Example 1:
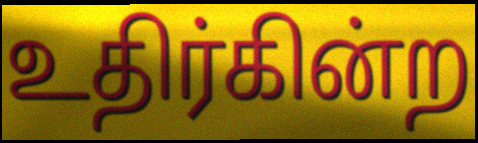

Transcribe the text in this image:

உதிர்கின்ற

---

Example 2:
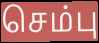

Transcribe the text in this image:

செம்பு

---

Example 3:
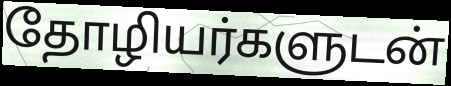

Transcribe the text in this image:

தோழியர்களுடன்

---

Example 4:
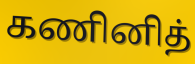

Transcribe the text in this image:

கணினித்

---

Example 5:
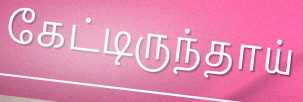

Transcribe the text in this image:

கேட்டிருந்தாய்